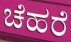
ಚೆಹರೆ